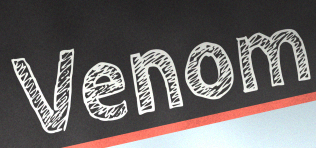
Venom